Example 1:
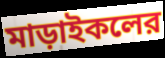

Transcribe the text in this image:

মাড়াইকলের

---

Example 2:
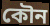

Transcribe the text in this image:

কৌন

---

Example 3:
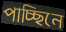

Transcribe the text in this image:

পাচ্ছিনে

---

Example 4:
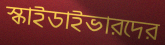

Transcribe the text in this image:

স্কাইডাইভারদের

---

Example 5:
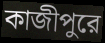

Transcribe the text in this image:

কাজীপুরে